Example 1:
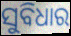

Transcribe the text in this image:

ସୁବିଧାର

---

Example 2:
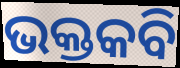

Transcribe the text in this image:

ଭକ୍ତକବି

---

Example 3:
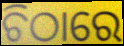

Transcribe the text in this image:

ଚିଠାରେ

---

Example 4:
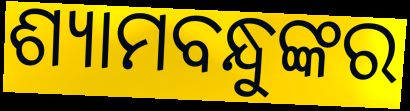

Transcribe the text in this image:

ଶ୍ୟାମବନ୍ଧୁଙ୍କର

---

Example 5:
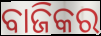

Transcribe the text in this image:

ବାଜିକର